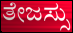
ತೇಜಸ್ಸು